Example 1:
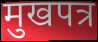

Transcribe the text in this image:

मुखपत्र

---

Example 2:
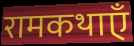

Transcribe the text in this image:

रामकथाएँ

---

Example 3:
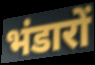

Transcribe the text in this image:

भंडारों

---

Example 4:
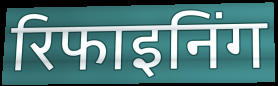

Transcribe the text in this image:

रिफाइनिंग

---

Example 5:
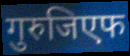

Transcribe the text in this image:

गुरुजिएफ